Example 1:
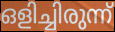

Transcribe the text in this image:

ഒളിച്ചിരുന്ന്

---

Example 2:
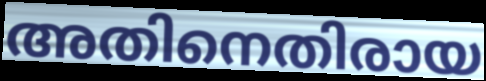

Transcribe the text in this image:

അതിനെതിരായ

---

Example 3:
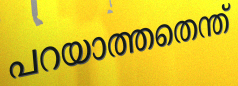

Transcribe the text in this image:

പറയാത്തതെന്ത്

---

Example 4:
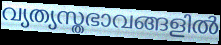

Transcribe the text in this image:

വ്യത്യസ്തഭാവങ്ങളിൽ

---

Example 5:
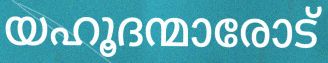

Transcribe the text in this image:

യഹൂദന്മാരോട്